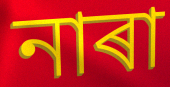
নাৰা